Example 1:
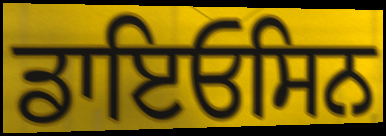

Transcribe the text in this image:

ਡਾਇਓਸਿਨ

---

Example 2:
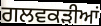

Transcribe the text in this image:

ਗਲਵਕੜੀਆਂ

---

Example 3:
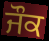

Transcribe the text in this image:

ਜੌਕ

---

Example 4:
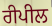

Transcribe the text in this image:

ਰੀਪੀਲ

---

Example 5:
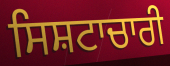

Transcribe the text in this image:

ਸਿਸ਼ਟਾਚਾਰੀ